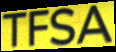
TFSA